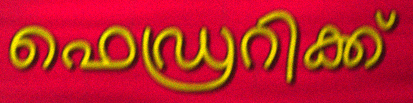
ഫെഡ്രറിക്ക്